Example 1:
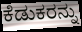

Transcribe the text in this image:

ಕೆಡುಕರನ್ನು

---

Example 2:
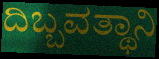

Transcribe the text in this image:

ದಿಬ್ಬವತ್ಥಾನಿ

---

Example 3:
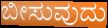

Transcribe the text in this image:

ಬೀಸುವುದು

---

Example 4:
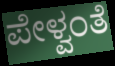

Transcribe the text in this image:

ಪೇಳ್ವಂತೆ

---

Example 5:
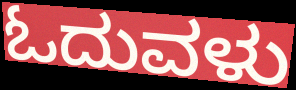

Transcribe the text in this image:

ಓದುವಳು